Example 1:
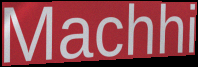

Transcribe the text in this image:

Machhi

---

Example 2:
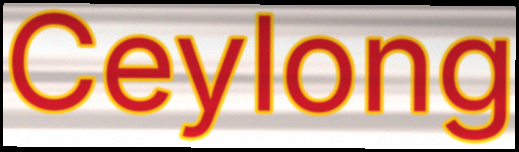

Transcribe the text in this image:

Ceylong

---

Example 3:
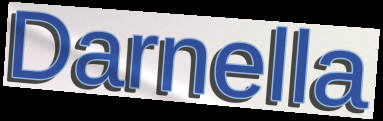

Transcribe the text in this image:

Darnella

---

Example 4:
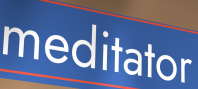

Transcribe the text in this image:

meditator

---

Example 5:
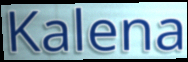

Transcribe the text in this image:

Kalena